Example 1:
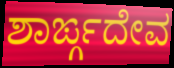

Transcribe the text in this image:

ಶಾರ್ಙ್ಗದೇವ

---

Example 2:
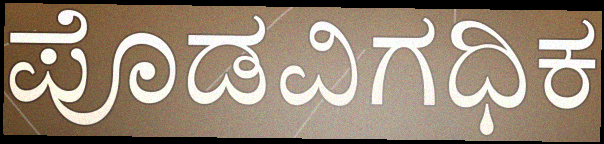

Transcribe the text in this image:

ಪೊಡವಿಗಧಿಕ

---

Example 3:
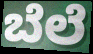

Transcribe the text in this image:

ಬೆಲೆ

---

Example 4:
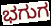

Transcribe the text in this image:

ಭಗುಗ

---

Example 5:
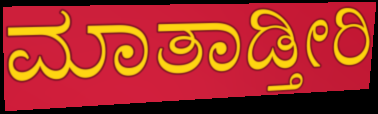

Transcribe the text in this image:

ಮಾತಾಡ್ತೀರಿ